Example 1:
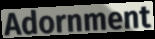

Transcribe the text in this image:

Adornment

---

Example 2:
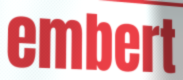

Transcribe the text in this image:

embert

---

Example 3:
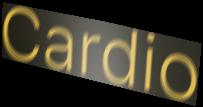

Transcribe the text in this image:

Cardio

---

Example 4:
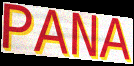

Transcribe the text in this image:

PANA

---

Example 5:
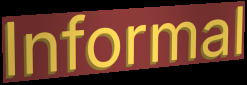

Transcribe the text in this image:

Informal